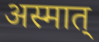
अस्मात्